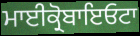
ਮਾਈਕ੍ਰੋਬਾਇਓਟਾ